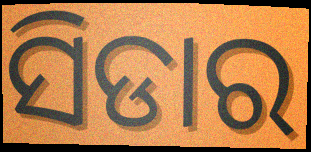
ସିଡାର